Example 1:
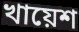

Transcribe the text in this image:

খায়েশ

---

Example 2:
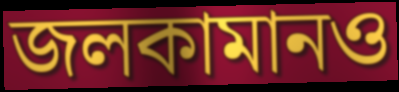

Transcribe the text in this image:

জলকামানও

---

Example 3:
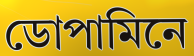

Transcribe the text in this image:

ডোপামিনে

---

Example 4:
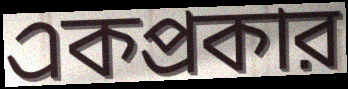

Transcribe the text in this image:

একপ্রকার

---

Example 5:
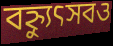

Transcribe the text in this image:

বহ্ন্যুৎসবও